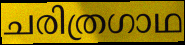
ചരിത്രഗാഥ